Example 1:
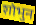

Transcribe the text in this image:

शोभुन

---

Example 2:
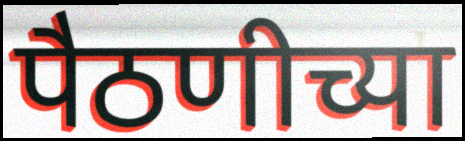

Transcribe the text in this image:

पैठणीच्या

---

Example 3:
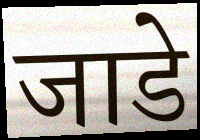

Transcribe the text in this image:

जाडे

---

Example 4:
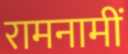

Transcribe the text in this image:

रामनामीं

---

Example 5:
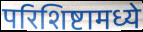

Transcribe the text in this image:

परिशिष्टामध्ये